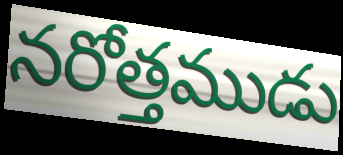
నరోత్తముడు